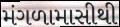
મંગળામાસીથી